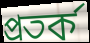
প্রতর্ক